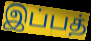
இப்பத்